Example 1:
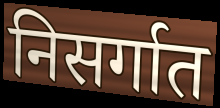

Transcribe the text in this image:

निसर्गात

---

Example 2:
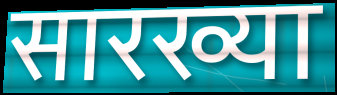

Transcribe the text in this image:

सारख्या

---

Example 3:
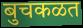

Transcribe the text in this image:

बुचकळत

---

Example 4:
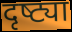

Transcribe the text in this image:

दृष्ट्या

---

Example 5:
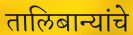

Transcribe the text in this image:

तालिबान्यांचे